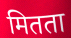
मितता